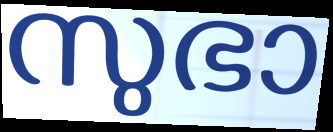
സുഭാ